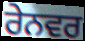
ਰੇਨਵਰ